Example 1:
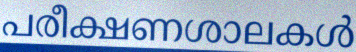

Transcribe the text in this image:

പരീക്ഷണശാലകൾ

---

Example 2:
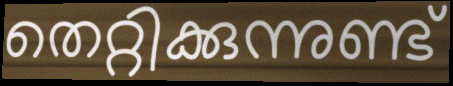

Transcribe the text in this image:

തെറ്റിക്കുന്നുണ്ട്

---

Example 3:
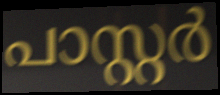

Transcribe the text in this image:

പാസ്റ്റർ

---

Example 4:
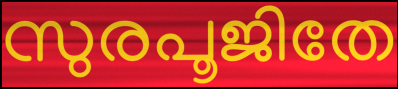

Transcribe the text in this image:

സുരപൂജിതേ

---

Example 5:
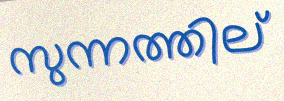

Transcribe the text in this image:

സുന്നത്തില്